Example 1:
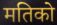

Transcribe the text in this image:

मतिको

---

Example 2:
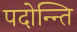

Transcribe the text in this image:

पदोन्न्ति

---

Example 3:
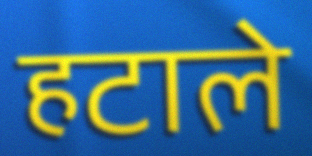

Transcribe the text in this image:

हटाले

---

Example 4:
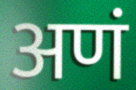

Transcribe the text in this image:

अणं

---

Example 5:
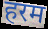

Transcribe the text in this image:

हरम